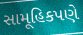
સામૂહિકપણે